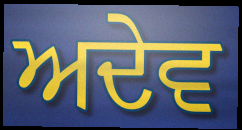
ਅਦੇਵ